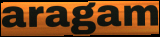
aragam